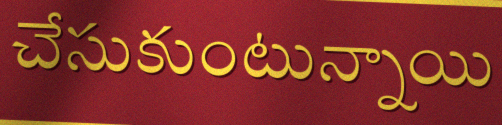
చేసుకుంటున్నాయి